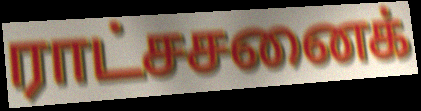
ராட்சசனைக்